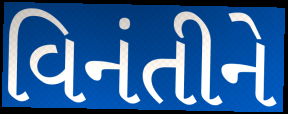
વિનંતીને